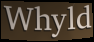
Whyld